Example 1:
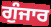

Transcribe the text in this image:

ਗੁੰਜਾਰ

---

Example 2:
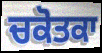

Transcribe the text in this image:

ਚਕੋਤਕਾ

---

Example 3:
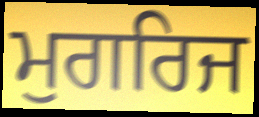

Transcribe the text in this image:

ਮੁਗਰਿਜ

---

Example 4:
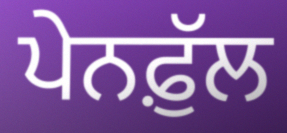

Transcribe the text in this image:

ਪੇਨਫ਼ੁੱਲ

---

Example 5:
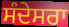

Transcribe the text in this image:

ਸੰਦੇਸਰਾ